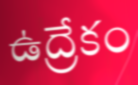
ఉద్రేకం